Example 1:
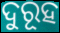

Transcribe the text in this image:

ଦୁରୂହ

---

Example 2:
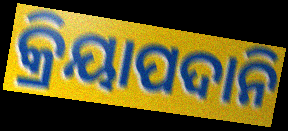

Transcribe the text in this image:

କ୍ରିୟାପଦାନି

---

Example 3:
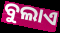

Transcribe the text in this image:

ବୁଲାଏ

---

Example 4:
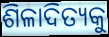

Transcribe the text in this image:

ଶିଳାଦିତ୍ୟକୁ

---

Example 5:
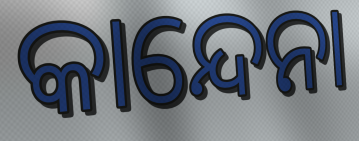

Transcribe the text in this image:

କାନ୍ଦେନା